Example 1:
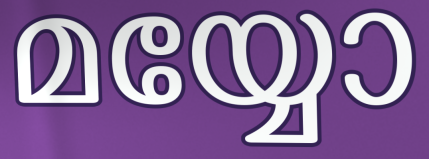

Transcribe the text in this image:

മയ്യോ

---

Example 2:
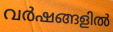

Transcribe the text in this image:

വർഷങ്ങളിൽ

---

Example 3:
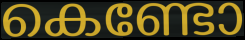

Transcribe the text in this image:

കെണ്ടോ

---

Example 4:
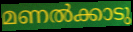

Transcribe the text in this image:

മണൽക്കാടു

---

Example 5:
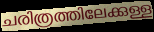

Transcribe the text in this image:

ചരിത്രത്തിലേക്കുള്ള